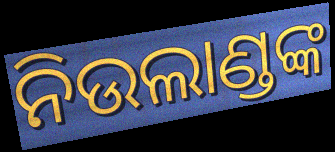
ନିଉଲାଣ୍ଡଙ୍କ